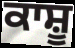
ਕਾਸ਼ੂ